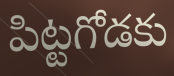
పిట్టగోడకు